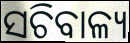
ସଚିବାଳ୍ୟ